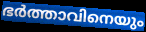
ഭർത്താവിനെയും